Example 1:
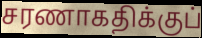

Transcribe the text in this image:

சரணாகதிக்குப்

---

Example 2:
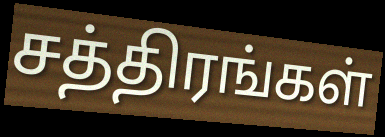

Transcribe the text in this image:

சத்திரங்கள்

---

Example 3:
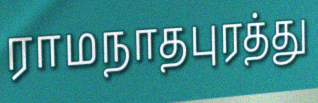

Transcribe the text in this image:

ராமநாதபுரத்து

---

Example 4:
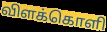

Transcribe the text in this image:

விளக்கொளி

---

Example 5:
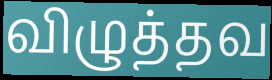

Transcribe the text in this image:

விழுத்தவ